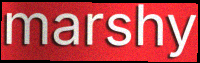
marshy